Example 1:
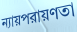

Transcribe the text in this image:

ন্যায়পরায়ণতা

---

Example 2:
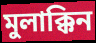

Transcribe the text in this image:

মুলাক্কিন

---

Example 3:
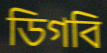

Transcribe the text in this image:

ডিগবি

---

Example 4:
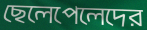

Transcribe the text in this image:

ছেলেপেলেদের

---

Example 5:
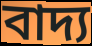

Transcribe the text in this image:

বাদ্য